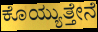
ಕೊಯ್ಯುತ್ತೇನೆ